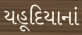
યહૂદિયાનાં